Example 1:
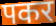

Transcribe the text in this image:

पकर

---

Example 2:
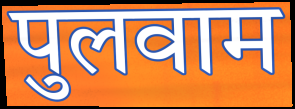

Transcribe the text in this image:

पुलवाम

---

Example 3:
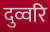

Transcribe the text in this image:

दुव्वरि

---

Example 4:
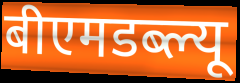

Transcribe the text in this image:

बीएमडब्ल्यू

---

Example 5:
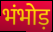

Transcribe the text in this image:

भंभोड़